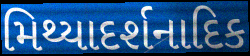
મિથ્યાદર્શનાદિક